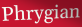
Phrygian